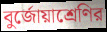
বুর্জোয়াশ্রেণির